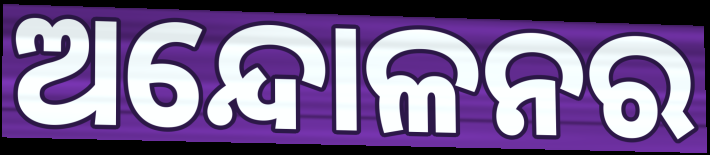
ଅନ୍ଦୋଳନର